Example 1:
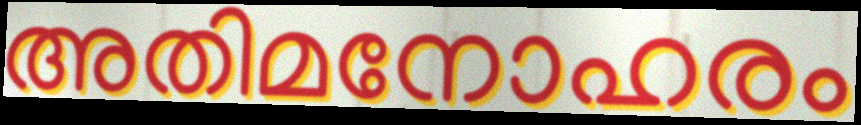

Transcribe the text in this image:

അതിമനോഹരം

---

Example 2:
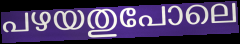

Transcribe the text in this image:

പഴയതുപോലെ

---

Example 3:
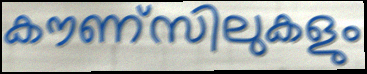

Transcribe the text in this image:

കൗണ്സിലുകളും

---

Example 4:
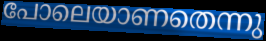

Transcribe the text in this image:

പോലെയാണതെന്നു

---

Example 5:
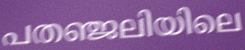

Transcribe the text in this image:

പതഞ്ജലിയിലെ